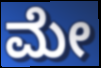
ಮೇ